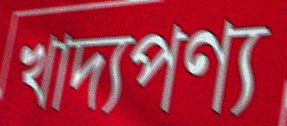
খাদ্যপণ্য